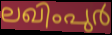
ലഖിംപുർ